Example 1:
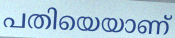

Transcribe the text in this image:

പതിയെയാണ്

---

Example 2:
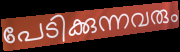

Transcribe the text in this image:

പേടിക്കുന്നവരും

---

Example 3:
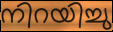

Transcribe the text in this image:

നിറയിച്ചു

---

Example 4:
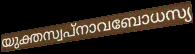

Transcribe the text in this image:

യുക്തസ്വപ്നാവബോധസ്യ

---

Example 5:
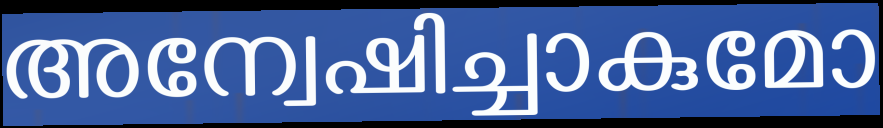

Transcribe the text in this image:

അന്വേഷിച്ചാകുമോ